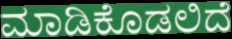
ಮಾಡಿಕೊಡಲಿದೆ